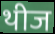
थीज